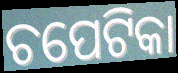
ଚପେଟିକା